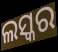
ଲସ୍କର